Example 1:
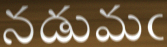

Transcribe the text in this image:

నడుమఁ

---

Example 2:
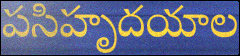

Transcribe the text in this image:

పసిహృదయాల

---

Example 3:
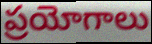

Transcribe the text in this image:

ప్రయోగాలు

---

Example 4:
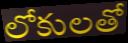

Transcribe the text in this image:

లోకులతో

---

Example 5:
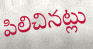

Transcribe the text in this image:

పిలిచినట్లు